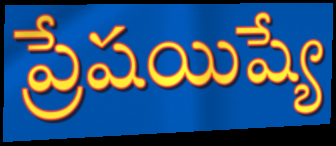
ప్రేషయిష్యే